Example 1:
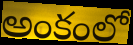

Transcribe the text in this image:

అంకంలో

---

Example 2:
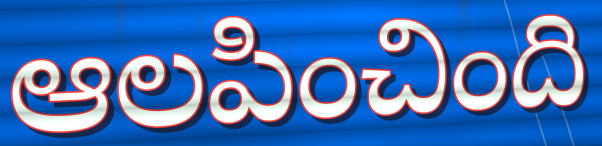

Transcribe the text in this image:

ఆలపించింది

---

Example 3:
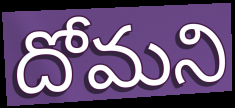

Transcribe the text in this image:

దోమని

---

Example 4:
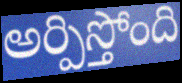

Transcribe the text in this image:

అర్పిస్తోంది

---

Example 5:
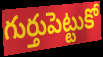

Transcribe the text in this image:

గుర్తుపెట్టుకో